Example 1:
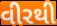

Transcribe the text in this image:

વીરથી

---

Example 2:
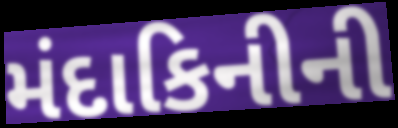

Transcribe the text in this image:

મંદાકિનીની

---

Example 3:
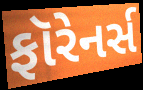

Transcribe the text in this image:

ફૉરેનર્સ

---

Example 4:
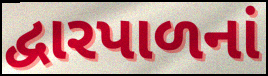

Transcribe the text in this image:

દ્વારપાળનાં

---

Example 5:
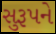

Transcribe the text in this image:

સુરૂપને